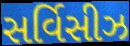
સર્વિસીઝ